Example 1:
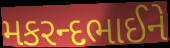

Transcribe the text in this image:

મકરન્દભાઈને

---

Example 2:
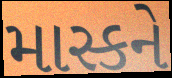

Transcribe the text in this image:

માસ્કને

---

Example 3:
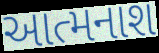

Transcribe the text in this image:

આત્મનાશ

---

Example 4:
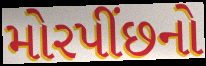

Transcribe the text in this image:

મોરપીંછનો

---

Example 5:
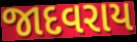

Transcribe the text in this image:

જાદવરાય